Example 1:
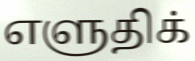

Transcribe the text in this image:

எளுதிக்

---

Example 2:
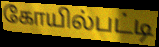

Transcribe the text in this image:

கோயில்பட்டி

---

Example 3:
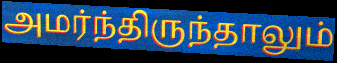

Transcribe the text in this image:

அமர்ந்திருந்தாலும்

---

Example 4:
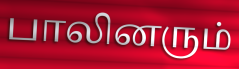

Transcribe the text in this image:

பாலினரும்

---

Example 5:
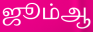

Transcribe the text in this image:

ஜூம்ஆ